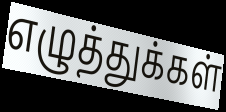
எழுத்துக்கள்